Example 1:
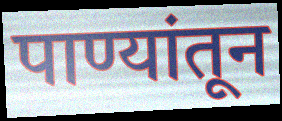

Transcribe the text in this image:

पाण्यांतून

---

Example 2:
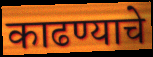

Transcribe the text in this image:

काढण्याचे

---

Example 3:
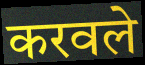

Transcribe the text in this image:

करवले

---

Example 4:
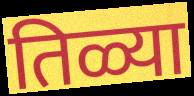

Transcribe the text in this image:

तिळ्या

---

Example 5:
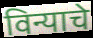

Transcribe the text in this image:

विन्याचे